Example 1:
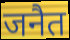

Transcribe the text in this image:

जनैत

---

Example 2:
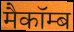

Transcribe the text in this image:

मैकॉम्ब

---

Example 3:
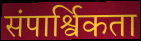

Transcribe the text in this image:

संपार्श्विकता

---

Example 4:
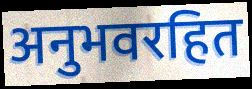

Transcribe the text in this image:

अनुभवरहित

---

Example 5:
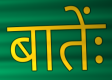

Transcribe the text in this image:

बातेंः